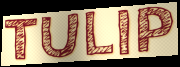
TULIP